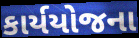
કાર્યયોજના